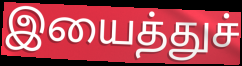
இயைத்துச்